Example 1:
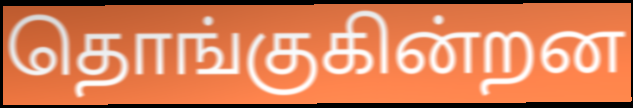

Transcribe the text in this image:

தொங்குகின்றன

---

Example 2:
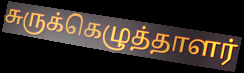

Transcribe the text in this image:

சுருக்கெழுத்தாளர்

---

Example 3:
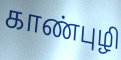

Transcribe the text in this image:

காண்புழி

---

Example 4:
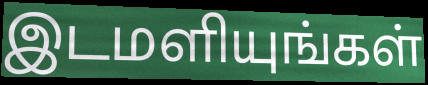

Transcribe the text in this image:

இடமளியுங்கள்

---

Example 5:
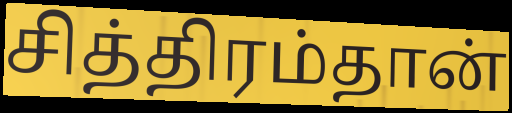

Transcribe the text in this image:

சித்திரம்தான்